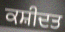
ਕਸ਼ੀਦਤ